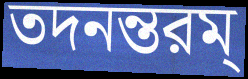
তদনন্তরম্